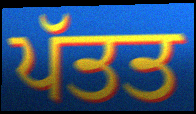
ਪੱਤਤ